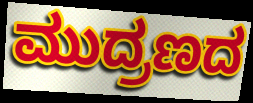
ಮುದ್ರಣದ